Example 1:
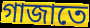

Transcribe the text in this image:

গাজাতে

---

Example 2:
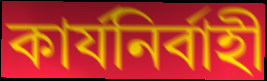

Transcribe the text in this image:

কার্যনির্বাহী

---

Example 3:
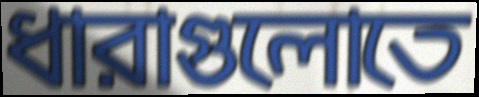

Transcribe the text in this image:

ধারাগুলোতে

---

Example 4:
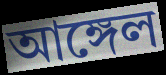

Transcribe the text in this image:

আঙ্গেল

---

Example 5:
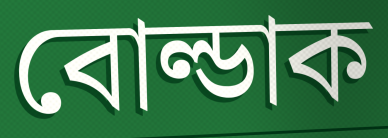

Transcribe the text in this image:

বোল্ডাক